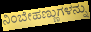
ನಿಂಬೇಹಣ್ಣುಗಳನ್ನು